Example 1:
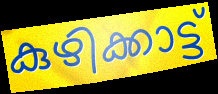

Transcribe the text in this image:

കുഴിക്കാട്ട്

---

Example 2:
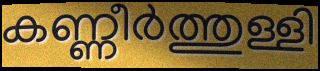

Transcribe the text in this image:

കണ്ണീർത്തുള്ളി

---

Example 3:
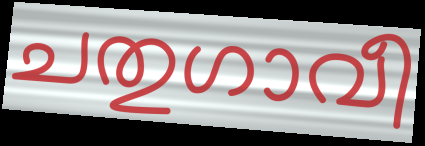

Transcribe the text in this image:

ചതുഗാവീ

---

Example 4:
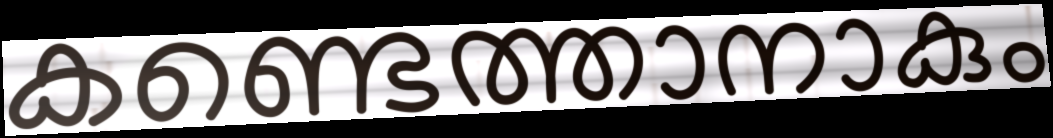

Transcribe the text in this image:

കണ്ടെത്താനാകും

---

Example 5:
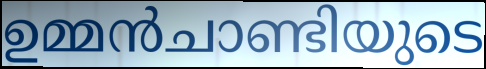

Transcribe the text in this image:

ഉമ്മൻചാണ്ടിയുടെ